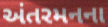
અંતરમનના